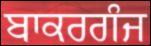
ਬਾਕਰਗੰਜ